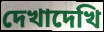
দেখাদেখি